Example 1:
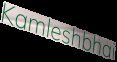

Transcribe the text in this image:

Kamleshbhai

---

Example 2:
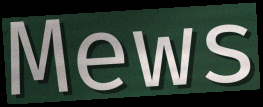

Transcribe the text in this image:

Mews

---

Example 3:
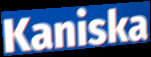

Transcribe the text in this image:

Kaniska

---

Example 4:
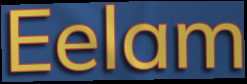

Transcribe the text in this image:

Eelam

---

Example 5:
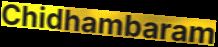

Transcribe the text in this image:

Chidhambaram